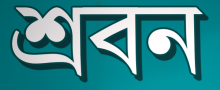
শ্ৰবন